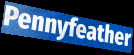
Pennyfeather